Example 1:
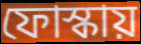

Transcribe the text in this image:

ফোস্কায়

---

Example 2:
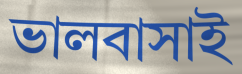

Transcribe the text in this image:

ভালবাসাই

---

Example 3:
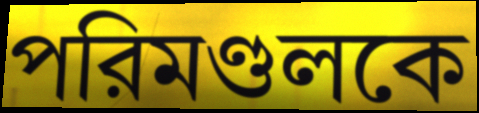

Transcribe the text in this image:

পরিমণ্ডলকে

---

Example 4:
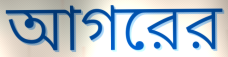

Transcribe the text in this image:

আগরের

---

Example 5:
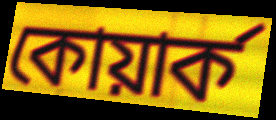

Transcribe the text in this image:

কোয়ার্ক